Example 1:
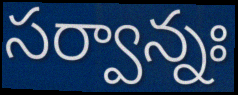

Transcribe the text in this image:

సర్వాన్నః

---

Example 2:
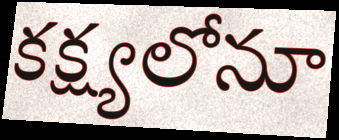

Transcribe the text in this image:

కక్ష్యలోనూ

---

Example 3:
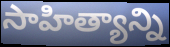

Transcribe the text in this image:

సాహిత్యాన్ని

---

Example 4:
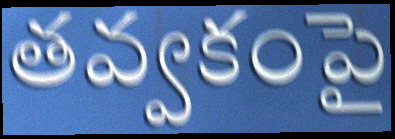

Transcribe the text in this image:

తవ్వకంపై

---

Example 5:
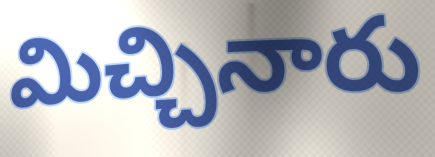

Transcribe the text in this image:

మిచ్చినారు